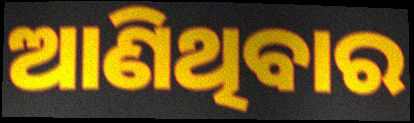
ଆଣିଥିବାର